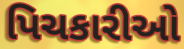
પિચકારીઓ